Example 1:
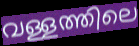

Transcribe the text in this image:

വള്ളത്തിലെ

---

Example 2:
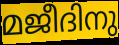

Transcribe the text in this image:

മജീദിനു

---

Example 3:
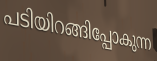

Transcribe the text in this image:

പടിയിറങ്ങിപ്പോകുന്ന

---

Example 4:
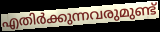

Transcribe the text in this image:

എതിർക്കുന്നവരുമുണ്ട്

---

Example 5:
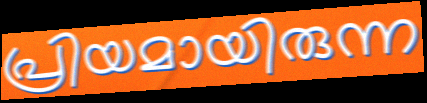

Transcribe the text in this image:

പ്രിയമായിരുന്ന